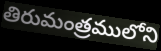
తిరుమంత్రములోని